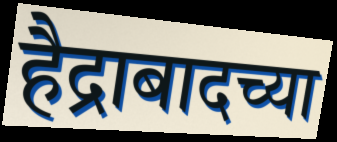
हैद्राबादच्या